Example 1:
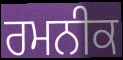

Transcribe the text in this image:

ਰਮਨੀਕ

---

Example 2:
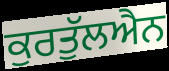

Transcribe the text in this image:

ਕੁਰਤੁੱਲਐਨ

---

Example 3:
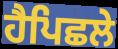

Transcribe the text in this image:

ਹੈਪਿਛਲੇ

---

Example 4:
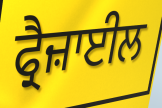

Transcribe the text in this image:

ਫ੍ਰੈਜ਼ਾਈਲ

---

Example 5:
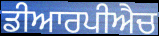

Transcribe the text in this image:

ਡੀਆਰਪੀਐਚ